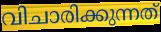
വിചാരിക്കുന്നത്